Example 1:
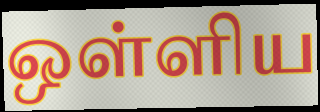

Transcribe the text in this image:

ஒள்ளிய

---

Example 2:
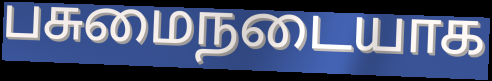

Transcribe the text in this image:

பசுமைநடையாக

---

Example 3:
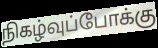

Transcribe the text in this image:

நிகழ்வுப்போக்கு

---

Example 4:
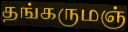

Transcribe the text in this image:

தங்கருமஞ்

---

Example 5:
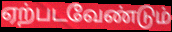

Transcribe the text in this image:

ஏற்படவேண்டும்